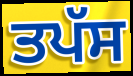
ਤਪੱਸ